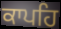
ਕਾਪਹਿ